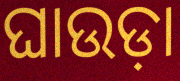
ଘାଉଡ଼ା